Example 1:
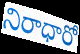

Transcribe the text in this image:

నిరాధారో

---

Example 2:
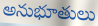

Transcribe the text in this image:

అనుభూతులు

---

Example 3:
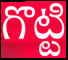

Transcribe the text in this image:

గొట్టి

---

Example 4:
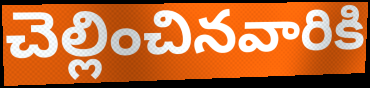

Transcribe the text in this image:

చెల్లించినవారికి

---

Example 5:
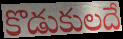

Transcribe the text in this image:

కొడుకులదే